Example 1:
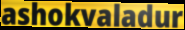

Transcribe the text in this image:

ashokvaladur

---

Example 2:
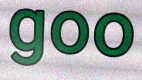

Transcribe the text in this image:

goo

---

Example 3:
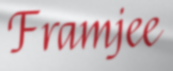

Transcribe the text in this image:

Framjee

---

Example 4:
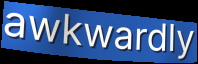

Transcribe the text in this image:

awkwardly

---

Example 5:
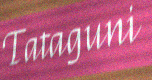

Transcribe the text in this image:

Tataguni